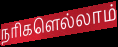
நரிகளெல்லாம்